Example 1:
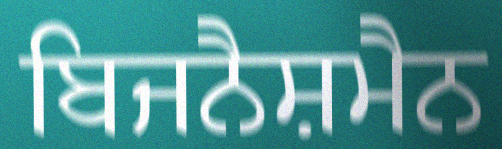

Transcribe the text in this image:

ਬਿਜਨੈਸ਼ਮੈਨ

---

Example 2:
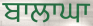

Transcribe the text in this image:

ਬਾਲਾਘਾ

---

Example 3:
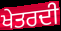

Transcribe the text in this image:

ਖੇਤਰਦੀ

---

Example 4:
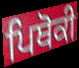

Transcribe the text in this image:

ਪਿਥੋਕੀ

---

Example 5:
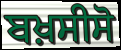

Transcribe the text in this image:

ਬਖ਼ਸੀਸੋ